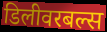
डिलीवरबल्स